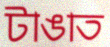
টাঙাত